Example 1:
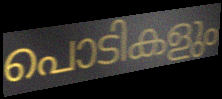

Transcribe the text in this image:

പൊടികളും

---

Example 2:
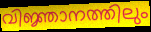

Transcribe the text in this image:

വിജ്ഞാനത്തിലും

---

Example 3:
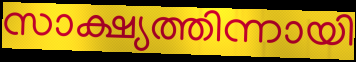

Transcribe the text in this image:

സാക്ഷ്യത്തിന്നായി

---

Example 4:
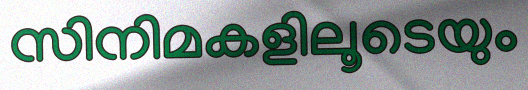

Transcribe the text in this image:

സിനിമകളിലൂടെയും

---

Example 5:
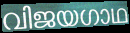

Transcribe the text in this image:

വിജയഗാഥ